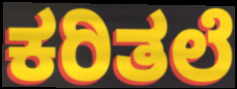
ಕರಿತಲೆ